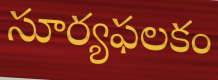
సూర్యఫలకం